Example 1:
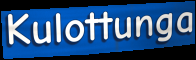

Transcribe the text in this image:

Kulottunga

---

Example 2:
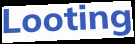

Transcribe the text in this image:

Looting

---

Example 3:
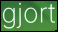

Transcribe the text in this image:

gjort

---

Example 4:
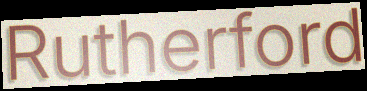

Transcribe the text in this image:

Rutherford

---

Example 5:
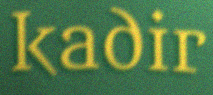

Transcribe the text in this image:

kadir